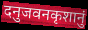
दनुजवनकृशानुं